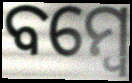
ବମ୍ୱେ